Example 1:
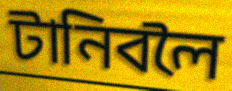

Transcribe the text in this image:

টানিবলৈ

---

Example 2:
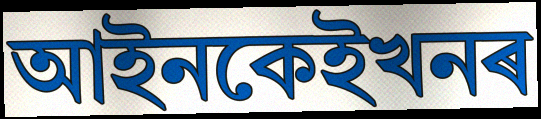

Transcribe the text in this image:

আইনকেইখনৰ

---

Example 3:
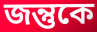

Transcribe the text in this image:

জন্তুকে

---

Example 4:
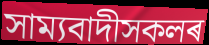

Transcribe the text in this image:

সাম্যবাদীসকলৰ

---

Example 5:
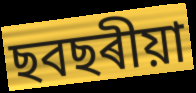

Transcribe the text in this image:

ছবছৰীয়া